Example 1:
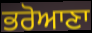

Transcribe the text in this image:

ਭਰੋਆਣਾ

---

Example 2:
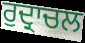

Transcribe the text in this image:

ਰੁਦ੍ਰਾਚਲ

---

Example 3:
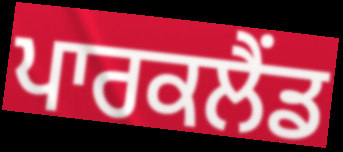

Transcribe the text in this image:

ਪਾਰਕਲੈਂਡ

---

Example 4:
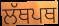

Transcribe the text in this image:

ਲੱਥਪਥ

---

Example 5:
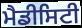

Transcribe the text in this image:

ਮੈਡੀਸਿਟੀ